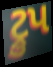
ટ્રુપ